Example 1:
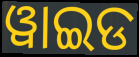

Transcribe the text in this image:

ୱାଇଡ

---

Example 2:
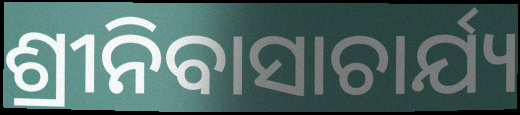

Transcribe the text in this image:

ଶ୍ରୀନିବାସାଚାର୍ଯ୍ୟ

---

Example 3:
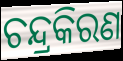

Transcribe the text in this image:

ଚନ୍ଦ୍ରକିରଣ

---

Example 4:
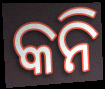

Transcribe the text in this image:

କନି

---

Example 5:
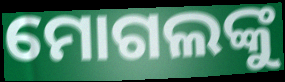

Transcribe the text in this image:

ମୋଗଲଙ୍କୁ